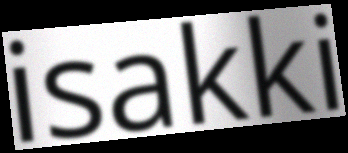
isakki